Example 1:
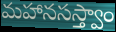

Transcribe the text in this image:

మహానసస్త్వాం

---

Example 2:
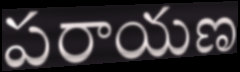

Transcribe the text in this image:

పరాయణ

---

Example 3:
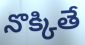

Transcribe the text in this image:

నొక్కితే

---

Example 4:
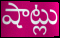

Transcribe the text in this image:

షాట్లు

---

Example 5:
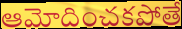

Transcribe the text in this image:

ఆమోదించకపోతే